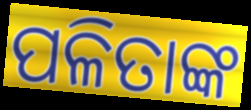
ପଳିତାଙ୍କ